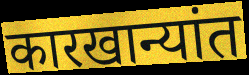
कारखान्यांत